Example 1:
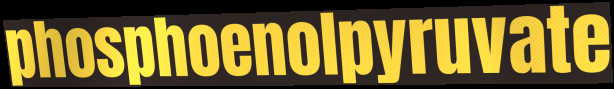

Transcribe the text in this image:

phosphoenolpyruvate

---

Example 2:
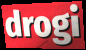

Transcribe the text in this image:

drogi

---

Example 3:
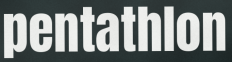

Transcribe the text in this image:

pentathlon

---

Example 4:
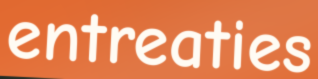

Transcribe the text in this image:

entreaties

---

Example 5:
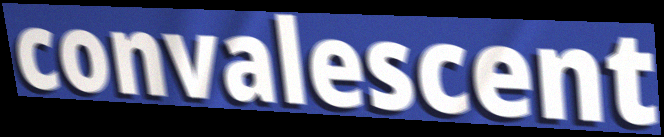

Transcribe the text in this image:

convalescent